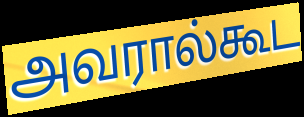
அவரால்கூட